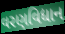
વરણવિદ્યાન